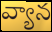
వ్యాన